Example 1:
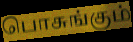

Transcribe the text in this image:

பொசுங்கும்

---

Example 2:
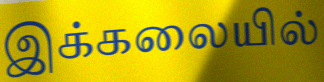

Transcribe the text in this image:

இக்கலையில்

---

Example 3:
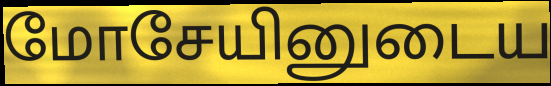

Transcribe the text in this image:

மோசேயினுடைய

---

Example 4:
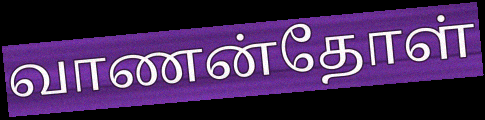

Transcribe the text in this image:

வாணன்தோள்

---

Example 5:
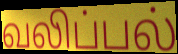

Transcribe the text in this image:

வலிப்பல்